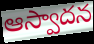
ఆస్వాదన